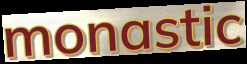
monastic